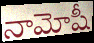
నామోషీ